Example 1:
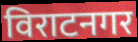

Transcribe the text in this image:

विराटनगर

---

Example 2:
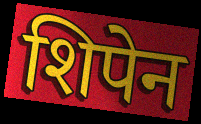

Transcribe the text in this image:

शिपेन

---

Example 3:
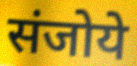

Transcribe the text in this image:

संजोये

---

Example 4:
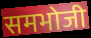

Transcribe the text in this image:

समभोजी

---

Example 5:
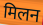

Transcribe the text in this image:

मिलन